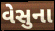
વેસુના